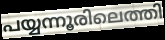
പയ്യന്നൂരിലെത്തി